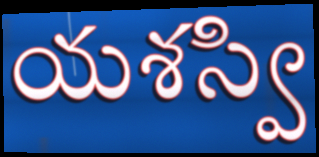
యశస్వి